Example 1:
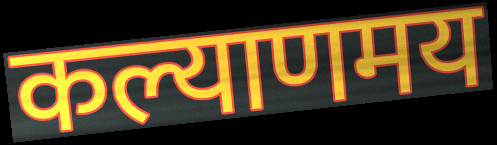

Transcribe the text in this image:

कल्याणमय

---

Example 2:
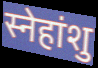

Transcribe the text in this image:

स्नेहांशु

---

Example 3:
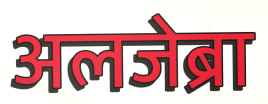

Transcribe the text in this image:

अलजेब्रा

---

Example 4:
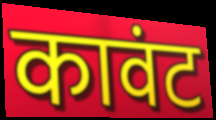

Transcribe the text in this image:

कावंट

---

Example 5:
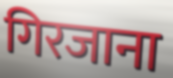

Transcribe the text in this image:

गिरजाना